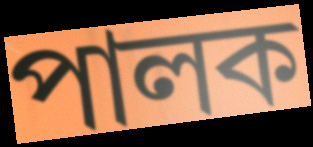
পালক